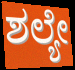
ಶಲ್ಯೇ